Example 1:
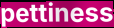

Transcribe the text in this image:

pettiness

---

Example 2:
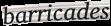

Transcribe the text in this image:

barricades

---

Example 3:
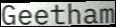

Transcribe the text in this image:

Geetham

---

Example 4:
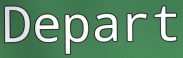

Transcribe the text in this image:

Depart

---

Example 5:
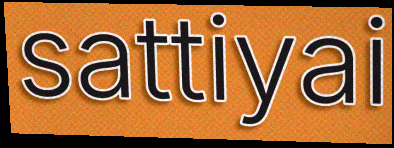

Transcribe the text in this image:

sattiyai